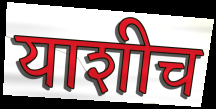
याशीच